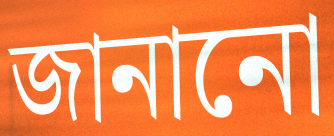
জানানো